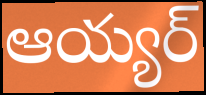
ఆయ్యర్